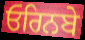
ਓਰਿਨਬੇ